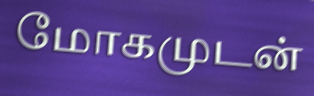
மோகமுடன்